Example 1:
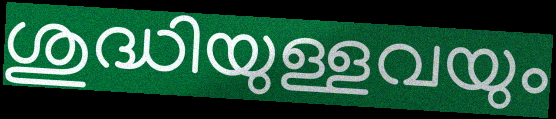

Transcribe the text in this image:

ശുദ്ധിയുള്ളവയും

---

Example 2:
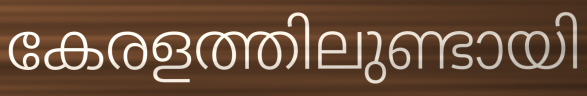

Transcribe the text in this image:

കേരളത്തിലുണ്ടായി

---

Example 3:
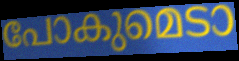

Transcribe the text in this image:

പോകുമെടാ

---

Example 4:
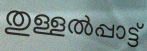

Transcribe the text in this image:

തുള്ളൽപ്പാട്ട്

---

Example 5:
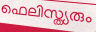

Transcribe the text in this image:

ഫെലിസ്ത്യരും